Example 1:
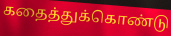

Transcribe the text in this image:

கதைத்துக்கொண்டு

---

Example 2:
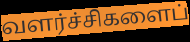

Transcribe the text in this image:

வளர்ச்சிகளைப்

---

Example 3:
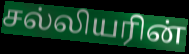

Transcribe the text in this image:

சல்லியரின்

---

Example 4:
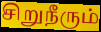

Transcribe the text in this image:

சிறுநீரும்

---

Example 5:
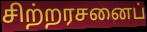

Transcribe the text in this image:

சிற்றரசனைப்